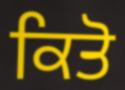
ਕਿਤੋ